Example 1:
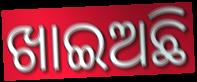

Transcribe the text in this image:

ଖାଇଅଛି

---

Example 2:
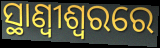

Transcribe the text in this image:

ସ୍ଥାଣ୍ୱୀଶ୍ୱରରେ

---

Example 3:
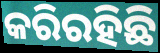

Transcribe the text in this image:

କରିରହିଛି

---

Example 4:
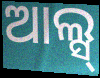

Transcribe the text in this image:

ଆଲ୍ସ୍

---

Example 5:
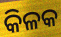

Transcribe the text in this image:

କିଳକ